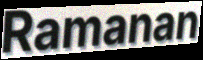
Ramanan